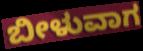
ಬೀಳುವಾಗ